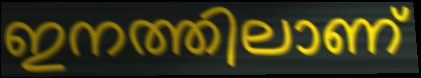
ഇനത്തിലാണ്